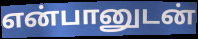
என்பானுடன்